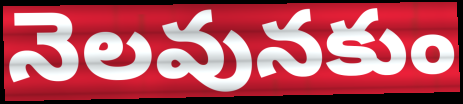
నెలవునకుం